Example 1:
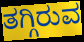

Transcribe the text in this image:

ತಗ್ಗಿರುವ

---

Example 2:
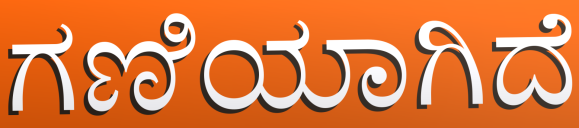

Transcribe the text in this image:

ಗಣಿಯಾಗಿದೆ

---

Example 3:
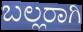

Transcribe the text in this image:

ಬಲ್ಲರಾಗಿ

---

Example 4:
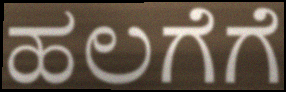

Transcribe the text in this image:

ಹಲಗೆಗೆ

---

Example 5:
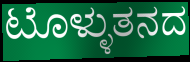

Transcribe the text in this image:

ಟೊಳ್ಳುತನದ